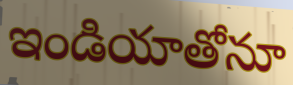
ఇండియాతోనూ